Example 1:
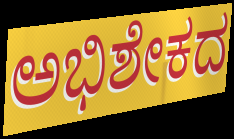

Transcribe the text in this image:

ಅಭಿಶೇಕದ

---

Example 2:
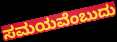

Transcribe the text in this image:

ಸಮಯವೆಂಬುದು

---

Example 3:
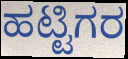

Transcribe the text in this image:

ಹಟ್ಟಿಗರ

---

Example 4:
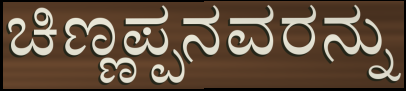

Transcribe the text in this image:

ಚಿಣ್ಣಪ್ಪನವರನ್ನು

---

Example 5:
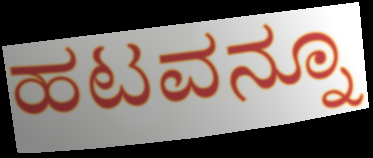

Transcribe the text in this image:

ಹಟವನ್ನೂ